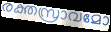
രക്തസ്രാവമോ